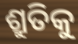
ଶ୍ରୁତିକୁ